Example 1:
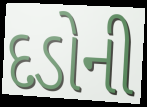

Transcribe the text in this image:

દડોની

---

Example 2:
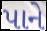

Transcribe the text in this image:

પાને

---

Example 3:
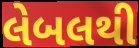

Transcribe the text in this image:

લેબલથી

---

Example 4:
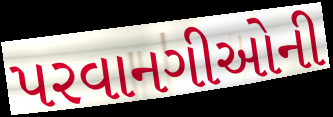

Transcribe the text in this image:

પરવાનગીઓની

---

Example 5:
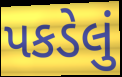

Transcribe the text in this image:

પકડેલું